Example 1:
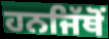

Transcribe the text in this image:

ਹਨਜਿੱਥੋਂ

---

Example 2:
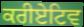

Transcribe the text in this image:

ਕਰੀਏਟਿਵ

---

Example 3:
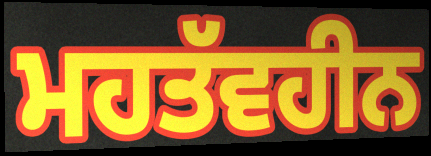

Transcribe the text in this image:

ਮਹਤੱਵਹੀਨ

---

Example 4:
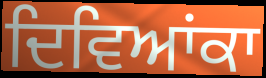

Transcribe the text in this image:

ਦਿਵਿਆਂਕਾ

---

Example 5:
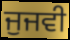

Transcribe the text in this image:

ਜੁਜਵੀ